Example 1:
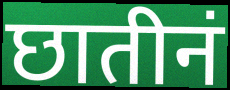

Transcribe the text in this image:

छातीनं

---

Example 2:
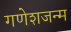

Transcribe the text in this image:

गणेशजन्म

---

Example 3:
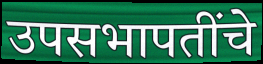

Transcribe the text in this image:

उपसभापतींचे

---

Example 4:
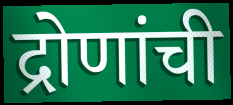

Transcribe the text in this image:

द्रोणांची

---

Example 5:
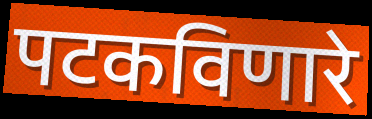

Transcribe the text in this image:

पटकविणारे